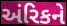
અંરિકને